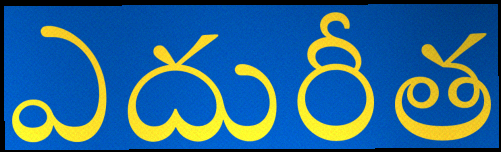
ఎదురీత